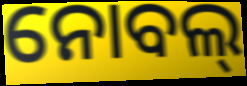
ନୋବଲ୍